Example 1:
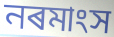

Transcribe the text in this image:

নৰমাংস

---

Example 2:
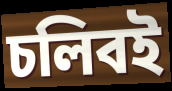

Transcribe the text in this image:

চলিবই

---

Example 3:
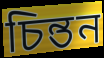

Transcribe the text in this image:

চিন্তন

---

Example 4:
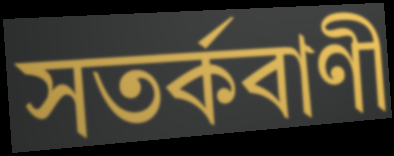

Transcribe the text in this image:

সতৰ্কবাণী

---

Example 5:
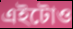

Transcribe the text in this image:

এইটোও